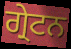
ਗ੍ਰੇਟਨ